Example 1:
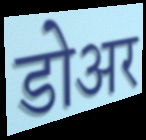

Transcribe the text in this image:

डोअर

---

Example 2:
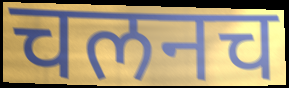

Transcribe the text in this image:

चलनच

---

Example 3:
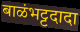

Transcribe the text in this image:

बाळंभट्टदादा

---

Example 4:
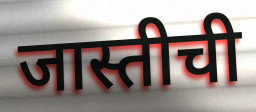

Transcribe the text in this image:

जास्तीची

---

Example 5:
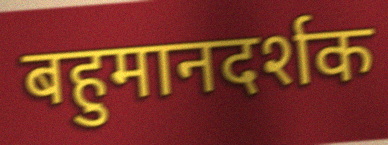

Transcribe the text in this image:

बहुमानदर्शक